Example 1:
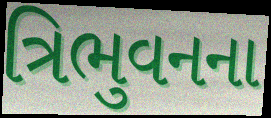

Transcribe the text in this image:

ત્રિભુવનના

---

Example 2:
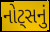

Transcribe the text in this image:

નોટ્સનું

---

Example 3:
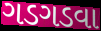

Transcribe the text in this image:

ગડગડવા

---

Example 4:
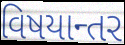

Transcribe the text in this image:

વિષયાન્તર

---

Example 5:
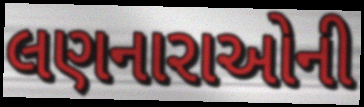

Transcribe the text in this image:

લણનારાઓની